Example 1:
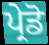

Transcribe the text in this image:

ਪ੍ਰੇਡੋ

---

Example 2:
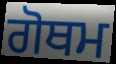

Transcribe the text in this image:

ਗੋਥਮ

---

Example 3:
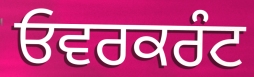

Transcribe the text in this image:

ਓਵਰਕਰੰਟ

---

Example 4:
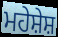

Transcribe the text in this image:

ਮਹੇਸ਼ੇਸ਼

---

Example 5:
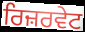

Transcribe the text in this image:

ਰਿਜ਼ਰਵੇਟ